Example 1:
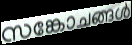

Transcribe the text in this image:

സങ്കോചങ്ങൾ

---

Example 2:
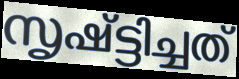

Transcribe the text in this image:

സൃഷ്ട്ടിച്ചത്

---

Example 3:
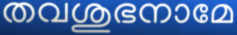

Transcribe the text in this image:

തവശുഭനാമേ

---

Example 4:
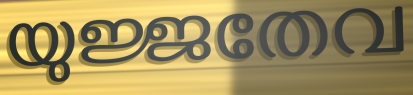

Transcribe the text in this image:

യുജ്ജതേവ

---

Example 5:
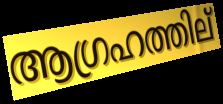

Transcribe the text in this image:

ആഗ്രഹത്തില്